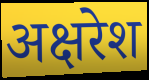
अक्षरेश